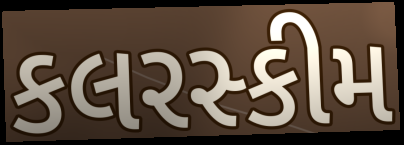
કલરસ્કીમ